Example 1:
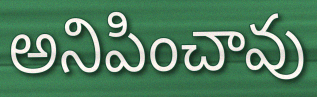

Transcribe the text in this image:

అనిపించావు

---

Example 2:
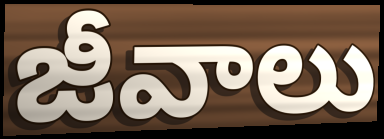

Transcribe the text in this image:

జీవాలు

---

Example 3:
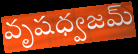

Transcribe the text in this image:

వృషధ్వజమ్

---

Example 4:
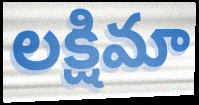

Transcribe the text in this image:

లక్షిమా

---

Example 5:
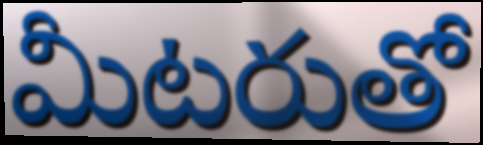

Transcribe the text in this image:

మీటరుతో